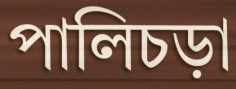
পালিচড়া